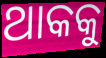
ଥାକକୁ